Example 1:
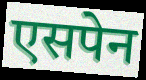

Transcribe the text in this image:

एसपेन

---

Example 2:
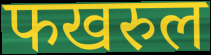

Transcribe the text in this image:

फखरुल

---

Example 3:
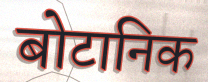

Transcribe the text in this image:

बोटानिक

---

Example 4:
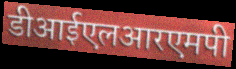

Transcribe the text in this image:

डीआईएलआरएमपी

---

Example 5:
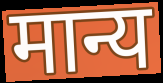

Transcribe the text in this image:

मान्य